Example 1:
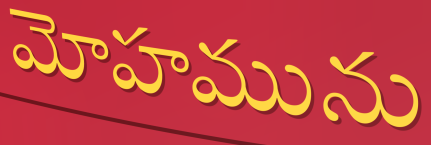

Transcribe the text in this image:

మోహమును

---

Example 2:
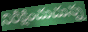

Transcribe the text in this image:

నిరీక్షించుచున్న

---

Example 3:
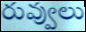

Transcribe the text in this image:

రువ్వులు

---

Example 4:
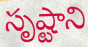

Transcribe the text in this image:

సృష్టాని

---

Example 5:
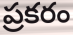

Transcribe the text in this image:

ప్రకరం